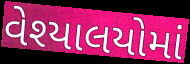
વેશ્યાલયોમાં